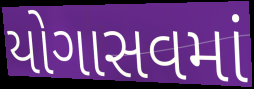
યોગાસવમાં